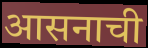
आसनाची